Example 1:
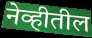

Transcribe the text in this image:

नेव्हीतील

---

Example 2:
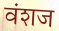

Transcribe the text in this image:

वंशज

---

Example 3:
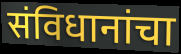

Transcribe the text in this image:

संविधानांचा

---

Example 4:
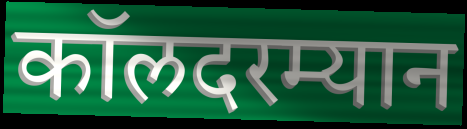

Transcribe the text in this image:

कॉलदरम्यान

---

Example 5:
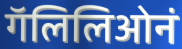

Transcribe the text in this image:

गॅलिलिओनं